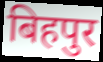
बिहपुर